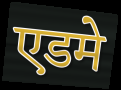
एडमे